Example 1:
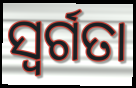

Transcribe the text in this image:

ସ୍ୱର୍ଗତା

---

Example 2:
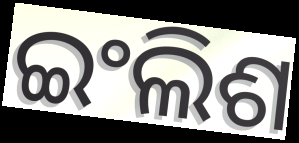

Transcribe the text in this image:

ଇଂଲିଶ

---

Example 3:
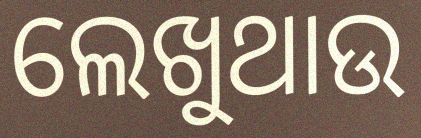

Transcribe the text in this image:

ଲେଖୁଥାଉ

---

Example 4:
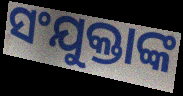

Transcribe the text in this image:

ସଂଯୁକ୍ତାଙ୍କ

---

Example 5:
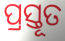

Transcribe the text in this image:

ପ୍ରସ୍ତୂତ